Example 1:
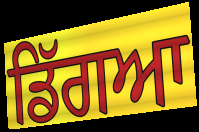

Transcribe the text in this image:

ਡਿੱਗਆ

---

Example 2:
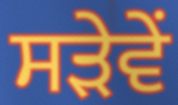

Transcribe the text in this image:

ਸੜੇਵੇਂ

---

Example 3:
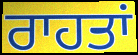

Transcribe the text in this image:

ਰਾਹਤਾਂ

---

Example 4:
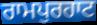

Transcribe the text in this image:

ਰਾਮਪੁਰਹਾਟ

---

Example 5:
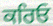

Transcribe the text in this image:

ਕਰਿਓ